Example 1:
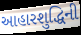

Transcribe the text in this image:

આહારશુદ્ધિની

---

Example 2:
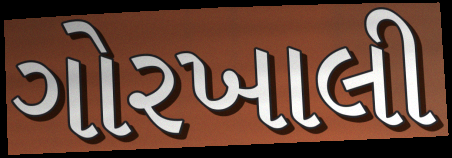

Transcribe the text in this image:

ગોરખાલી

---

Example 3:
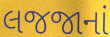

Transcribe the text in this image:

લજજાનાં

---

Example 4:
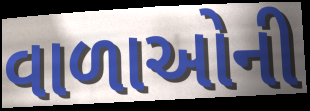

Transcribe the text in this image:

વાળાઓની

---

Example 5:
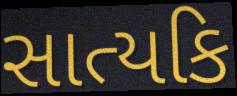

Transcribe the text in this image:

સાત્યકિ